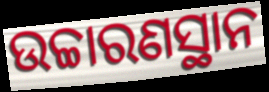
ଉଚ୍ଚାରଣସ୍ଥାନ